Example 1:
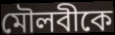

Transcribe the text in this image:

মৌলবীকে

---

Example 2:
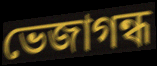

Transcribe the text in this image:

ভেজাগন্ধ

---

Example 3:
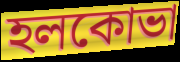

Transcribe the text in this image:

হলকোভা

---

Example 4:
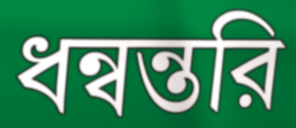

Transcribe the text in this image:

ধন্বন্তরি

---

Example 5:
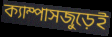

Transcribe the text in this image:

ক্যাম্পাসজুড়েই